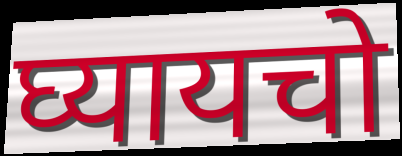
घ्यायचो